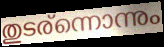
തുടര്ന്നൊന്നും